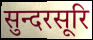
सुन्दरसूरि